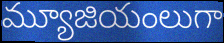
మ్యూజియంలుగా